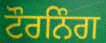
ਟੌਰਨਿੰਗ